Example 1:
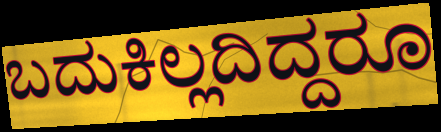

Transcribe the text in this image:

ಬದುಕಿಲ್ಲದಿದ್ದರೂ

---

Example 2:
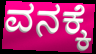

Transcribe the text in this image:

ವನಕ್ಕೆ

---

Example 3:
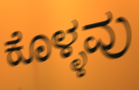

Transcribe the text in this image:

ಕೊಳ್ಳವು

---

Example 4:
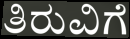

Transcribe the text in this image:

ತಿರುವಿಗೆ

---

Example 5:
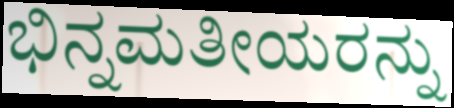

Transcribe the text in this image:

ಭಿನ್ನಮತೀಯರನ್ನು